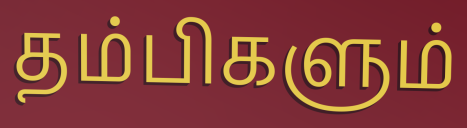
தம்பிகளும்